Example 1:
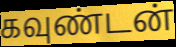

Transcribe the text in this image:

கவுண்டன்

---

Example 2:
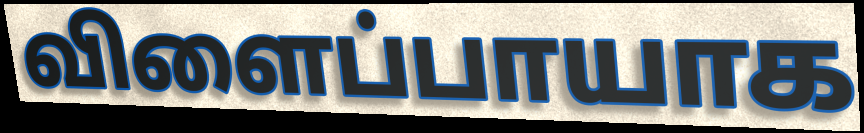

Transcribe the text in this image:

விளைப்பாயாக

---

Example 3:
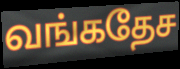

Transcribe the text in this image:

வங்கதேச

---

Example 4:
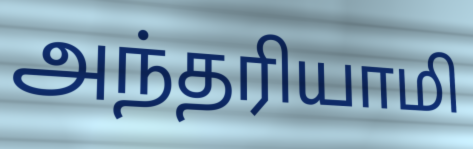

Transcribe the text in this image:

அந்தரியாமி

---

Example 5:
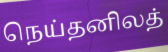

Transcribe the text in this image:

நெய்தனிலத்